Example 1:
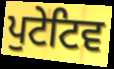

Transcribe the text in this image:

ਪੁਟੇਟਿਵ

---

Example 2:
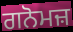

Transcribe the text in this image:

ਗਨੋਮਜ਼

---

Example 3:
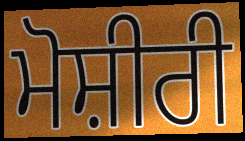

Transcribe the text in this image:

ਮੋਸ਼ੀਰੀ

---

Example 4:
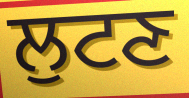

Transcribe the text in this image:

ਲੁਟਣ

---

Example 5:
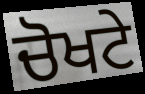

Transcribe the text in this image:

ਚੋਖਟੇ